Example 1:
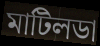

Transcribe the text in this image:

মাটিলডা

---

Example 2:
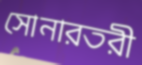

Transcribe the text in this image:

সোনারতরী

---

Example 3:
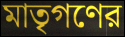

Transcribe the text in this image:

মাতৃগণের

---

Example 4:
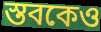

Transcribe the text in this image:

স্তবকেও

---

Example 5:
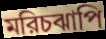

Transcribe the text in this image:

মরিচঝাপি